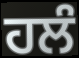
ਹਲੰ